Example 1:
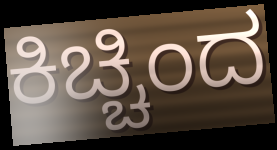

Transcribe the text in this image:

ಕಿಚ್ಚಿಂದ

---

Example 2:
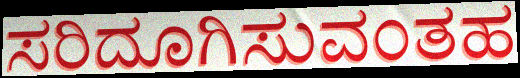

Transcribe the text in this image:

ಸರಿದೂಗಿಸುವಂತಹ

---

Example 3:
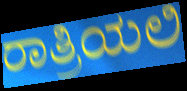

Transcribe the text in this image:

ರಾತ್ರಿಯಲಿ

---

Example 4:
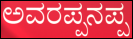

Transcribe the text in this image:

ಅವರಪ್ಪನಪ್ಪ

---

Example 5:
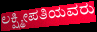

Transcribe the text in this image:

ಲಕ್ಷ್ಮೀಪತಿಯವರು